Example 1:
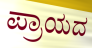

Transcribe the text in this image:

ಪ್ರಾಯದ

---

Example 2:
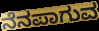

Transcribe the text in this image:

ನೆನಪಾಗುವ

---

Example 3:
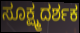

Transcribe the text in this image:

ಸೂಕ್ಷ್ಮದರ್ಶಕ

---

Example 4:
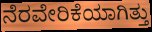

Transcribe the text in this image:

ನೆರವೇರಿಕೆಯಾಗಿತ್ತು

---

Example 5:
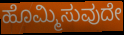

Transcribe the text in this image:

ಹೊಮ್ಮಿಸುವುದೇ